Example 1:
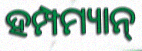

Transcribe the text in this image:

ହମ୍ପମ୍ୟାନ୍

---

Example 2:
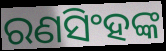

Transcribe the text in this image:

ରଣସିଂହଙ୍କ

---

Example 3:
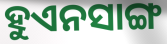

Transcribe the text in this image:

ହୁଏନସାଙ୍ଗ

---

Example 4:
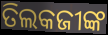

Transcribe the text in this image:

ତିଲକଜୀଙ୍କ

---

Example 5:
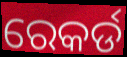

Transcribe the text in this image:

ରେକର୍ଡ